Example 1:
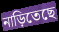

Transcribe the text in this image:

নাড়িতেছে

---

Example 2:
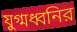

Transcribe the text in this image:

যুগ্মধ্বনির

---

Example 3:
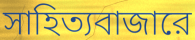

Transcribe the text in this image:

সাহিত্যবাজারে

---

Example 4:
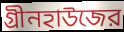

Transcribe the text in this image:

গ্রীনহাউজের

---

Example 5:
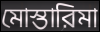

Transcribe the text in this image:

মোস্তারিমা